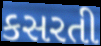
કસરતી